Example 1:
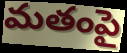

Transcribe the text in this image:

మతంపై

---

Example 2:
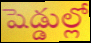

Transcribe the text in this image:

షెడ్డుల్లో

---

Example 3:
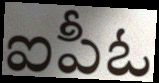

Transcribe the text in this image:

ఐపీఓ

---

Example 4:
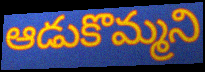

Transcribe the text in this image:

ఆడుకొమ్మని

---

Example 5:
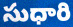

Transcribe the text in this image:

సుధారి